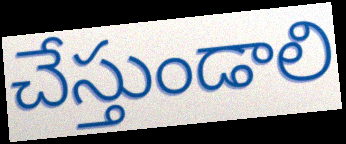
చేస్తుండాలి